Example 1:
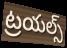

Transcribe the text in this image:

ట్రయల్స్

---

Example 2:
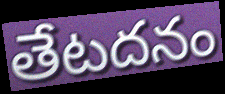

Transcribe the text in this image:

తేటదనం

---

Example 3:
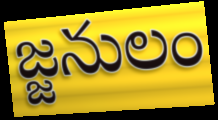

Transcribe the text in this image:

జ్జనులం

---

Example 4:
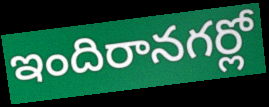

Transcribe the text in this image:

ఇందిరానగర్లో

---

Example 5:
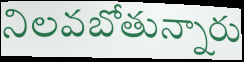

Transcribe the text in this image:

నిలవబోతున్నారు